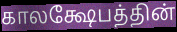
காலக்ஷேபத்தின்